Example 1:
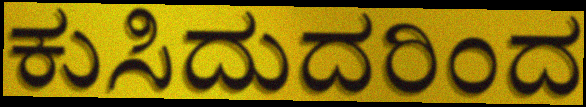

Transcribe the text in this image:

ಕುಸಿದುದರಿಂದ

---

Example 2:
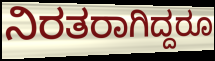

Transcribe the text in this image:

ನಿರತರಾಗಿದ್ದರೂ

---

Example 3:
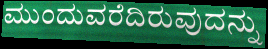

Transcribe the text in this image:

ಮುಂದುವರೆದಿರುವುದನ್ನು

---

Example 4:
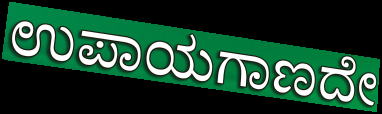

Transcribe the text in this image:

ಉಪಾಯಗಾಣದೇ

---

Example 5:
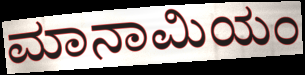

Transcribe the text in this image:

ಮಾನಾಮಿಯಂ